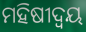
ମହିଷୀଦ୍ୱୟ